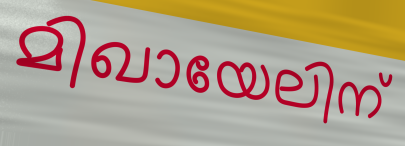
മിഖായേലിന്